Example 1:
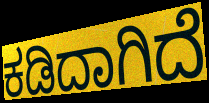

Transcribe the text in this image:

ಕಡಿದಾಗಿದೆ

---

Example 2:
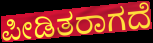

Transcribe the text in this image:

ಪೀಡಿತರಾಗದೆ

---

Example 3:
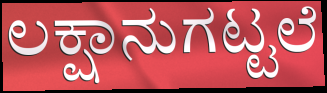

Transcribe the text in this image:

ಲಕ್ಷಾನುಗಟ್ಟಲೆ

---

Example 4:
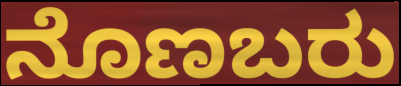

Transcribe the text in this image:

ನೊಣಬರು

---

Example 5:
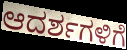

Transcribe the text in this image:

ಆದರ್ಶಗಳಿಗೆ